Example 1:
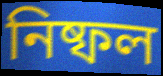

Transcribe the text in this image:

নিষ্ফল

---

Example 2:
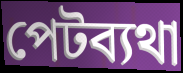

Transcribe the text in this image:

পেটব্যথা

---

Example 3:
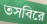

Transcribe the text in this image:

তসবিরে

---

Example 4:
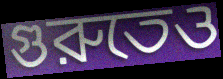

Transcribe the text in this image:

গুরুতেও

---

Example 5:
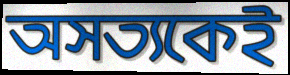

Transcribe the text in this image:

অসত্যকেই